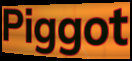
Piggot